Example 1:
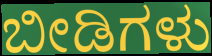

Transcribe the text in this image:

ಬೀಡಿಗಳು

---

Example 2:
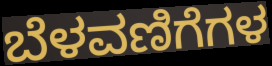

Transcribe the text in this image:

ಬೆಳವಣಿಗೆಗಳ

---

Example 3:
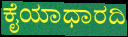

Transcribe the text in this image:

ಕೈಯಾಧಾರದಿ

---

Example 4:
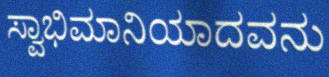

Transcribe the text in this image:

ಸ್ವಾಭಿಮಾನಿಯಾದವನು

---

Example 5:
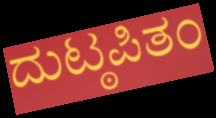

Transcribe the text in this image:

ದುಟ್ಠಪಿತಂ